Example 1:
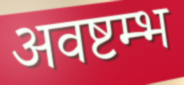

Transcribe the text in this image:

अवष्टम्भ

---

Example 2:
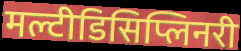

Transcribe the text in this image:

मल्टीडिसिप्लिनरी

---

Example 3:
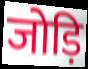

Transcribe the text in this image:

जोड़ि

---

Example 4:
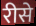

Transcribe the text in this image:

रीसे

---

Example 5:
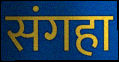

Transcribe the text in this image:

संगहा